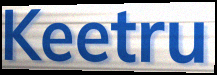
Keetru